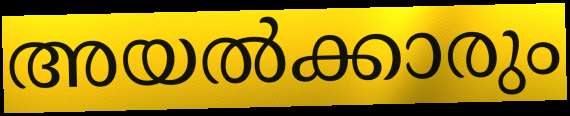
അയൽക്കാരും